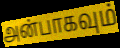
அன்பாகவும்